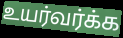
உயர்வர்க்க